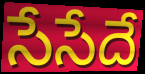
సేసేదే